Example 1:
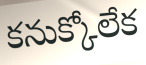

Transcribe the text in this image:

కనుక్కోలేక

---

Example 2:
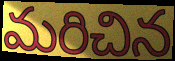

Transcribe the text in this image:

మరిచిన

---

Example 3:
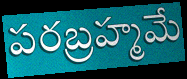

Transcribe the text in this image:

పరబ్రహ్మమే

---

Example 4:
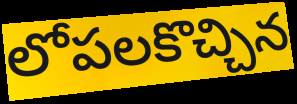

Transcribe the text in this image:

లోపలకొచ్చిన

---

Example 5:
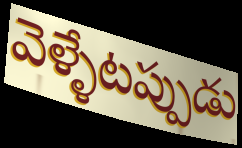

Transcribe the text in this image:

వెళ్ళేటప్పుడు